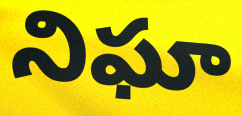
నిఘా